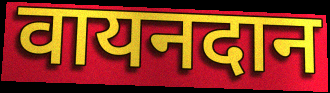
वायनदान